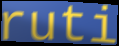
ruti